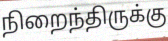
நிறைந்திருக்கு